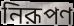
নিরূপণ